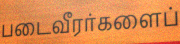
படைவீரர்களைப்